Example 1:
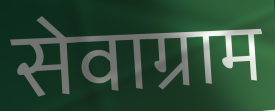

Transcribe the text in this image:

सेवाग्राम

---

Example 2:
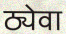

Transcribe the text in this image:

ठ्येवा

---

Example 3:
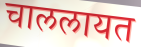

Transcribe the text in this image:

चाललायत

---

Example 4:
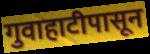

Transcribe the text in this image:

गुवाहाटीपासून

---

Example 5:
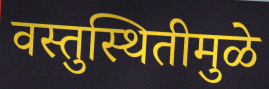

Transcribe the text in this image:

वस्तुस्थितीमुळे